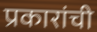
प्रकारांची